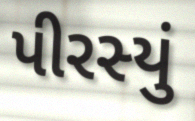
પીરસ્યું